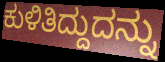
ಕುಳಿತಿದ್ದುದನ್ನು